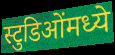
स्टुडिओंमध्ये